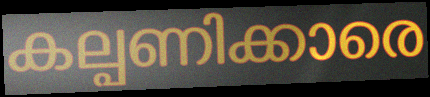
കല്പണിക്കാരെ